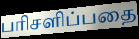
பரிசளிப்பதை